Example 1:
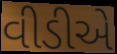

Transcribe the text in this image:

વીડીએ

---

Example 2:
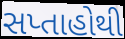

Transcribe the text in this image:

સપ્તાહોથી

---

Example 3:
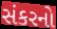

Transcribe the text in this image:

સંકરનો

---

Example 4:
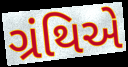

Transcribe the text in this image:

ગ્રંથિએ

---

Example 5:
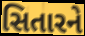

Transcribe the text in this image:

સિતારને